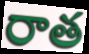
రాత